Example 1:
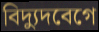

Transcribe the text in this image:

বিদ্যুদবেগে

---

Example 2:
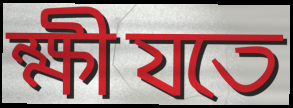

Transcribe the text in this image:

ক্ষীযতে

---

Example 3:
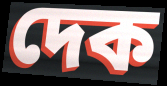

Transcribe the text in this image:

দেক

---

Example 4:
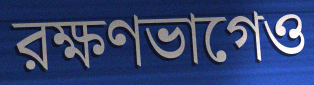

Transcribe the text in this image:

রক্ষণভাগেও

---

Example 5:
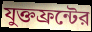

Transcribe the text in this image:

যুক্তফ্রন্টের